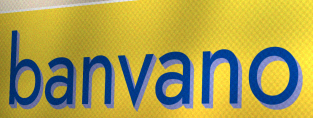
banvano